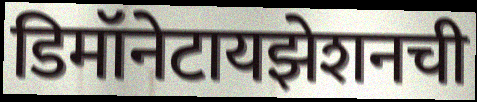
डिमॉनेटायझेशनची